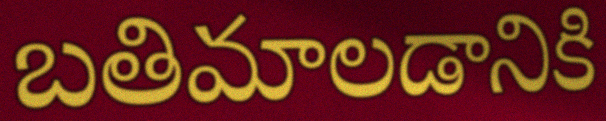
బతిమాలడానికి